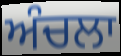
ਅੰਚਲਾ